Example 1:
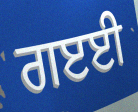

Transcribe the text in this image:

ਗੲਈ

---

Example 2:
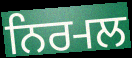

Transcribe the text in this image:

ਨਿਰ੍ਮਲ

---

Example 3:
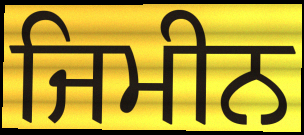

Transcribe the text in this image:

ਜਿਮੀਨ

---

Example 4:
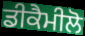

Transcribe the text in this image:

ਡੀਕੈਮੀਲੋ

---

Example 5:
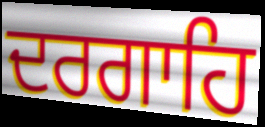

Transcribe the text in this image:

ਦਰਗਾਹਿ